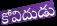
కోవిదుడు